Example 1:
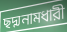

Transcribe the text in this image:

ছদ্মনামধারী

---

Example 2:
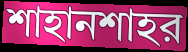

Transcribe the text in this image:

শাহানশাহর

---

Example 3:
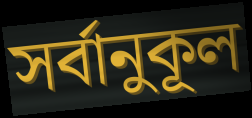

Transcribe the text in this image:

সর্বানুকূল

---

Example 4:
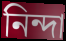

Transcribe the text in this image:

নিন্দা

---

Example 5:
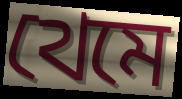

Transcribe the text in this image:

থেমে